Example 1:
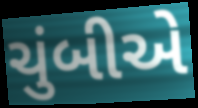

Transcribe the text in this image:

ચુંબીએ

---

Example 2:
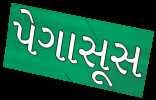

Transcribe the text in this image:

પેગાસૂસ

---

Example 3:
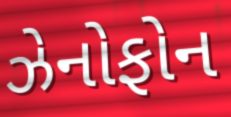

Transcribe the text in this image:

ઝેનોફોન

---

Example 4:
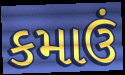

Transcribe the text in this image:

કમાઉં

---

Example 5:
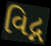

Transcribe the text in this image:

વિદ્ન